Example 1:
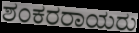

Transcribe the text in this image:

ಶಂಕರರಾಯರು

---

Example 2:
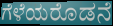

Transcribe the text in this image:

ಗೆಳೆಯರೊಡನೆ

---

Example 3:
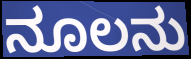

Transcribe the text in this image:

ನೂಲನು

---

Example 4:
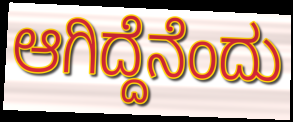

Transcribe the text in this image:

ಆಗಿದ್ದೆನೆಂದು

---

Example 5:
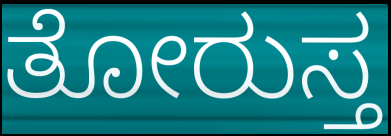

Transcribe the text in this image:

ತೋರುಸ್ತ